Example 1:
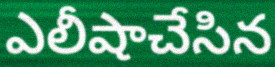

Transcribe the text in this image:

ఎలీషాచేసిన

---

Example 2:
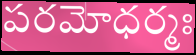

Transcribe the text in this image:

పరమోధర్మః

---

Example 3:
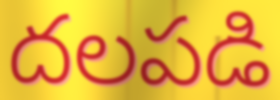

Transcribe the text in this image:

దలపడి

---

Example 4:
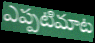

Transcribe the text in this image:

ఎప్పటిమాట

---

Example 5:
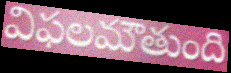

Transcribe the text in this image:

విఫలమౌతుంది